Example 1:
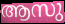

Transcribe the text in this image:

ആസു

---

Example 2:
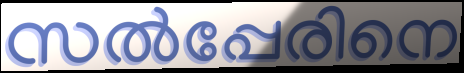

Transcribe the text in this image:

സൽപ്പേരിനെ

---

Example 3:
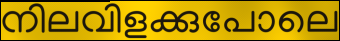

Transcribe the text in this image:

നിലവിളക്കുപോലെ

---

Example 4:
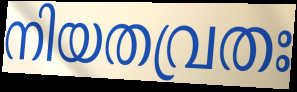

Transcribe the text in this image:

നിയതവ്രതഃ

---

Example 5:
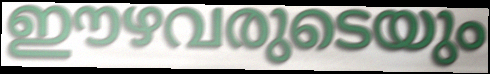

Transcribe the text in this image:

ഈഴവരുടെയും